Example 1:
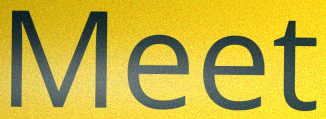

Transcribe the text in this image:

Meet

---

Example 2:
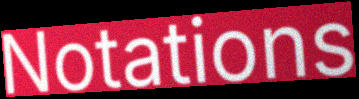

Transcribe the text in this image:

Notations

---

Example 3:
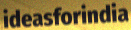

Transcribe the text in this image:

ideasforindia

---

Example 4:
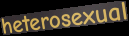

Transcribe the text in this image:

heterosexual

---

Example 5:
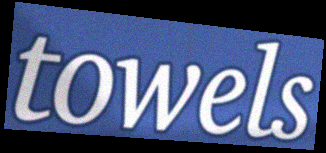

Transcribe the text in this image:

towels